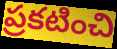
ప్రకటించి